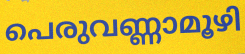
പെരുവണ്ണാമൂഴി